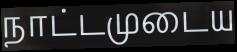
நாட்டமுடைய